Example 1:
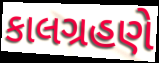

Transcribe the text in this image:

કાલગ્રહણે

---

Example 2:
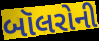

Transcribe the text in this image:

બૉલરોની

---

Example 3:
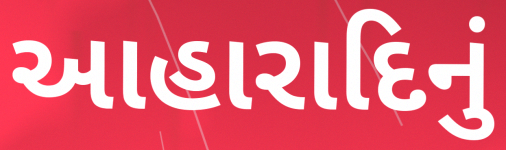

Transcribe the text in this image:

આહારાદિનું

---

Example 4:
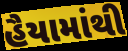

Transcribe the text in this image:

હૈયામાંથી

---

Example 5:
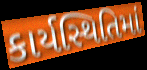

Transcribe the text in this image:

કાર્યસ્થિતિમાં